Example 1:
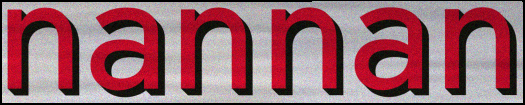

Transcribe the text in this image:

nannan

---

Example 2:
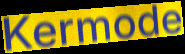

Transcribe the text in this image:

Kermode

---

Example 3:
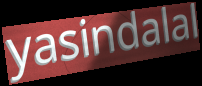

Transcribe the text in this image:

yasindalal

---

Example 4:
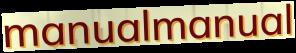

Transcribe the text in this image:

manualmanual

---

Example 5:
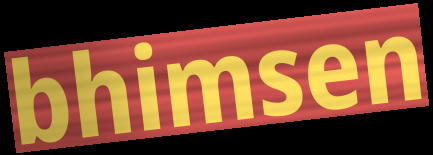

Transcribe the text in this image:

bhimsen